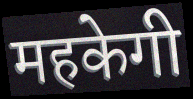
महकेगी